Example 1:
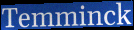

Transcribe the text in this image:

Temminck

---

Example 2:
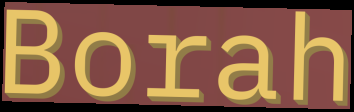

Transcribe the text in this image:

Borah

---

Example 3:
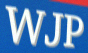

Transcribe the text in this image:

WJP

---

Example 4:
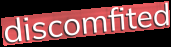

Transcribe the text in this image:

discomfited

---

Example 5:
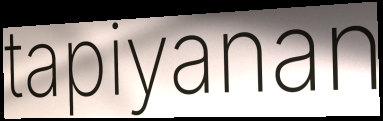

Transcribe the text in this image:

tapiyanan